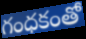
గంధకంతో